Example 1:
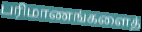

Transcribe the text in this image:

பரிமாணங்களைத்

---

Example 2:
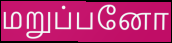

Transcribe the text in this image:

மறுப்பனோ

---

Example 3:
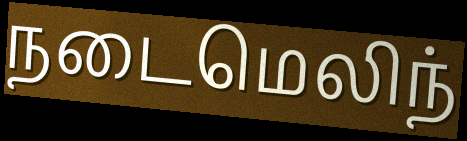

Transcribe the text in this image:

நடைமெலிந்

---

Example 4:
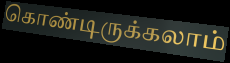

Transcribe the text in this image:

கொண்டிருக்கலாம்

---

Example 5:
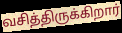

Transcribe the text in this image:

வசித்திருக்கிறார்